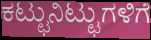
ಕಟ್ಟುನಿಟ್ಟುಗಳಿಗೆ